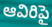
ఆవిరిపై